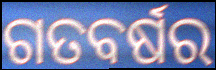
ଗତବର୍ଷର